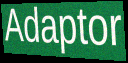
Adaptor